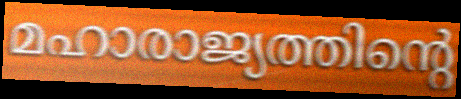
മഹാരാജ്യത്തിന്റെ